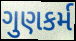
ગુણકર્મ